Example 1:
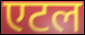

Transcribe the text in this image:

एटल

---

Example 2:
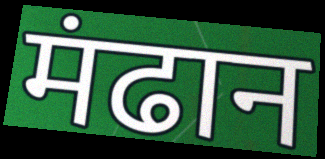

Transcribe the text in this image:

मंढान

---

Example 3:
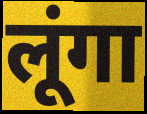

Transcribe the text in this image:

लूंगा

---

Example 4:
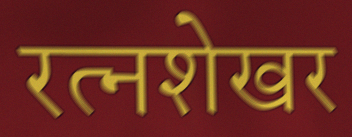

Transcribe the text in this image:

रत्नशेखर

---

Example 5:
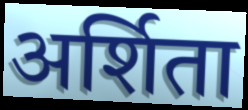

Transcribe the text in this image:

अर्शिता